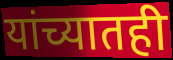
यांच्यातही